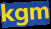
kgm